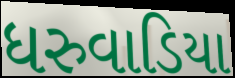
ધરુવાડિયા